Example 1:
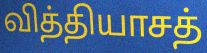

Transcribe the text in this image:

வித்தியாசத்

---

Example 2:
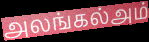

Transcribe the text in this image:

அலங்கல்அம்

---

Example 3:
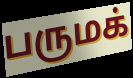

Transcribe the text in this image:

பருமக்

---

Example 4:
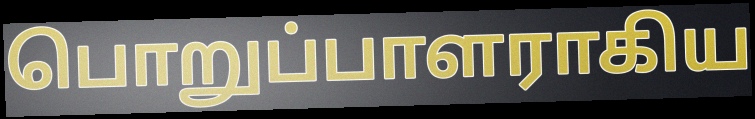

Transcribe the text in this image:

பொறுப்பாளராகிய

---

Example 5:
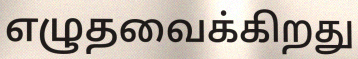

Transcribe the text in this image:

எழுதவைக்கிறது